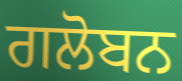
ਗਲੋਬਨ